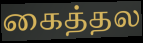
கைத்தல